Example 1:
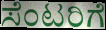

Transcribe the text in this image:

ಸೆಂಟರಿಗೆ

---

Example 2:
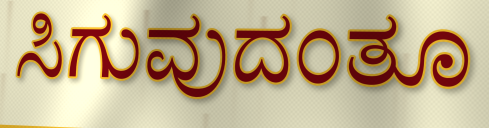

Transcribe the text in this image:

ಸಿಗುವುದಂತೂ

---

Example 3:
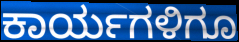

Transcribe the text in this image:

ಕಾರ್ಯಗಳಿಗೂ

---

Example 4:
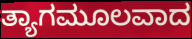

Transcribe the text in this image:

ತ್ಯಾಗಮೂಲವಾದ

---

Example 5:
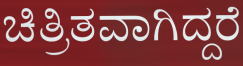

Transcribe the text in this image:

ಚಿತ್ರಿತವಾಗಿದ್ದರೆ